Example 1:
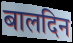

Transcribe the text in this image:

बालदिन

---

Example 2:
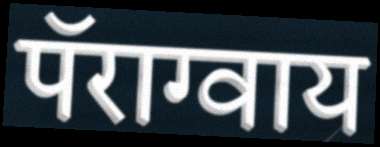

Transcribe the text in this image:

पॅराग्वाय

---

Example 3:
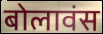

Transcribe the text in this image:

बोलावंस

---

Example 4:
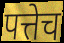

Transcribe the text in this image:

पत्तेच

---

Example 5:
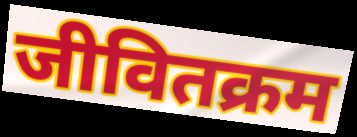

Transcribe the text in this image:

जीवितक्रम